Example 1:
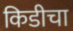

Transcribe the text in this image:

किडीचा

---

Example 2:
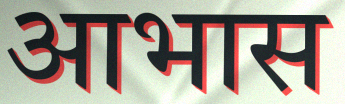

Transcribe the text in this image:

आभास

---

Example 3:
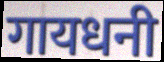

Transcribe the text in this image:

गायधनी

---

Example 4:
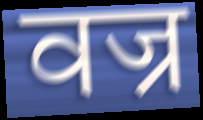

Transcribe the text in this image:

वज्र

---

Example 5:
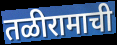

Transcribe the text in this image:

तळीरामाची